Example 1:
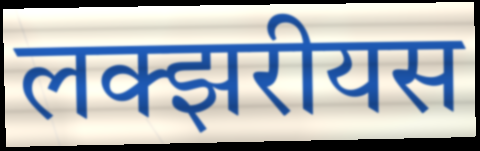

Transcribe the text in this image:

लक्झरीयस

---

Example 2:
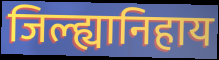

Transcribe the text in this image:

जिल्ह्यानिहाय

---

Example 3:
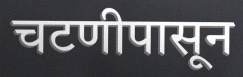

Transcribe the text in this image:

चटणीपासून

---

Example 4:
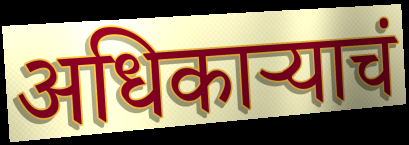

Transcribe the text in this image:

अधिकाऱ्याचं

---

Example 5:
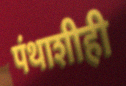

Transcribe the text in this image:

पंथाशीही